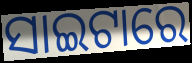
ସାଇଟାରେ